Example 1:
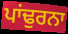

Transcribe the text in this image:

ਪਾਂਢੁਰਨਾ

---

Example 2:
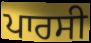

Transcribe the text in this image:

ਪਾਰਸੀ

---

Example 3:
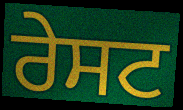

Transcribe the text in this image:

ਰੇਸਟ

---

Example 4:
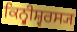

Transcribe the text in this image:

ਕਿਨ੍ਤ੍ਵੀਸ਼੍ਵਰਸ੍ਯ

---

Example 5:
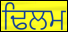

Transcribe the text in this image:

ਢਿਲਮ